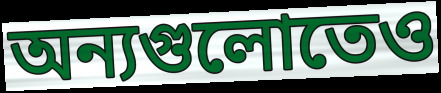
অন্যগুলোতেও